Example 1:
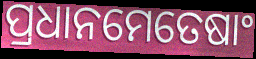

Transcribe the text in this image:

ପ୍ରଧାନମେତେଷାଂ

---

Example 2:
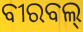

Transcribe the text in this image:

ବୀରବଲ୍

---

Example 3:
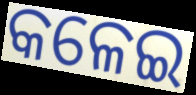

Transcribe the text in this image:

କଳେଇ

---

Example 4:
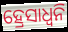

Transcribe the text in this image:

ହ୍ରେସାଧ୍ୱନି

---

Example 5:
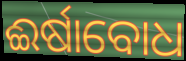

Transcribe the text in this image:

ଈର୍ଷାବୋଧ